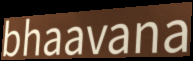
bhaavana